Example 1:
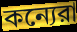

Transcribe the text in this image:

কন্যেরা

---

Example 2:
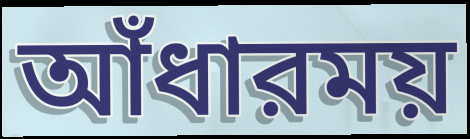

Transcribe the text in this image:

আঁধারময়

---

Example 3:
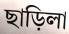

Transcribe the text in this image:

ছাড়িলা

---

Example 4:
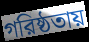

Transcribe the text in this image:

গরিষ্ঠতায়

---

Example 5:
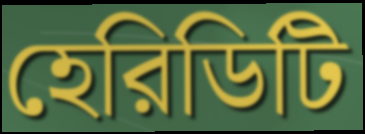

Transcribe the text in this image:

হেরিডিটি